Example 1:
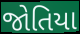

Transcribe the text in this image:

જોતિયા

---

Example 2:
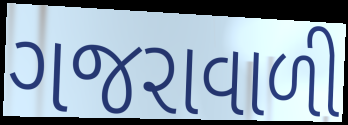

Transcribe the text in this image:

ગજરાવાળી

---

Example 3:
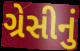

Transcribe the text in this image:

ગ્રેસીનું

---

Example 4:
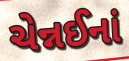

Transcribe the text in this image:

ચેન્નઈનાં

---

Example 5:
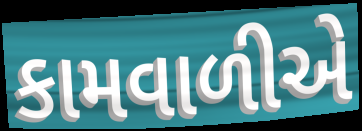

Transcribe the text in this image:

કામવાળીએ